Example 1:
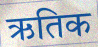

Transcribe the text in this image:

ऋतिक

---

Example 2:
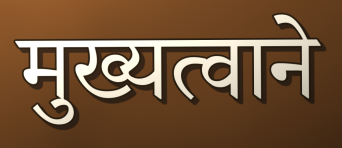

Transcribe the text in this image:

मुख्यत्वाने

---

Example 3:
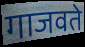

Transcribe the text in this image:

गाजवते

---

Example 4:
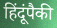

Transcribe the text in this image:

हिंदूंपैकी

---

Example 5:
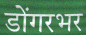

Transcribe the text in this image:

डोंगरभर